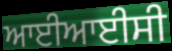
ਆਈਆਈਸੀ